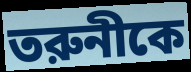
তরুনীকে